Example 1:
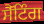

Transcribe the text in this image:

ਸੈੱਟਿੰਗ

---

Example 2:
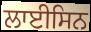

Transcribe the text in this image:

ਲਾਈਸਿਨ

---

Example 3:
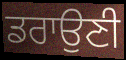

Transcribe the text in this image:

ਡਰਾਉਣੀ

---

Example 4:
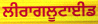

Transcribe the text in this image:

ਲੀਰਾਗਲੂਟਾਈਡ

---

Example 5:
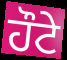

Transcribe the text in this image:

ਹੌਟੇ